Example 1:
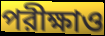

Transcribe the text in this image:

পরীক্ষাও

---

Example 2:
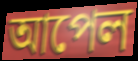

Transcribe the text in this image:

আপেল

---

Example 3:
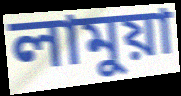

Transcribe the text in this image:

লামুয়া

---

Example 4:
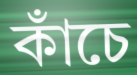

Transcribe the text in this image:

কাঁচে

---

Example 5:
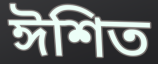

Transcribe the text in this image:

ঈশিত